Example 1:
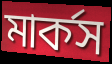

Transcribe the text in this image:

মার্কস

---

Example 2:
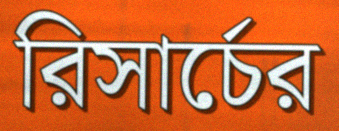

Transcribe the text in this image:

রিসার্চের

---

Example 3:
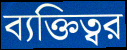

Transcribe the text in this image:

ব্যক্তিত্বর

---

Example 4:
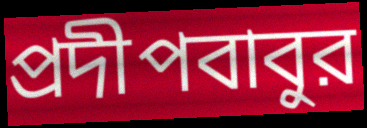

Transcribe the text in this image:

প্রদীপবাবুর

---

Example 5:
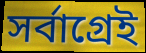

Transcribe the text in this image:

সর্বাগ্রেই